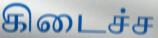
கிடைச்ச